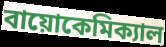
বায়োকেমিক্যাল